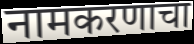
नामकरणाचा